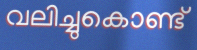
വലിച്ചുകൊണ്ട്